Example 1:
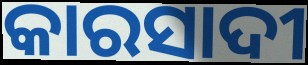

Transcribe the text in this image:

କାରସାଦୀ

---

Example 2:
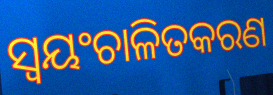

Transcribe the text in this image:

ସ୍ୱୟଂଚାଳିତକରଣ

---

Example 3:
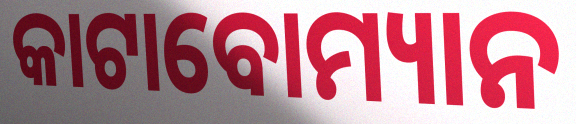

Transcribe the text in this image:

କାଟାବୋମ୍ୟାନ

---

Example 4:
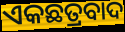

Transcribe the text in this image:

ଏକଛତ୍ରବାଦ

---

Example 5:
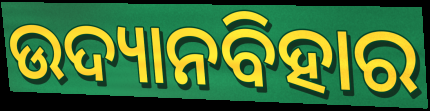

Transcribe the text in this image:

ଉଦ୍ୟାନବିହାର